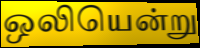
ஒலியென்று